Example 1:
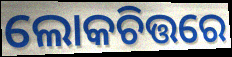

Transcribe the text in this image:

ଲୋକଚିତ୍ତରେ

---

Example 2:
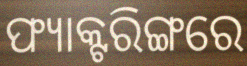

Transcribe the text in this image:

ଫ୍ୟାକ୍ଟରିଙ୍ଗରେ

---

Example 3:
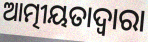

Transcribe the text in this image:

ଆତ୍ମୀୟତାଦ୍ଵାରା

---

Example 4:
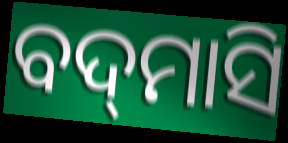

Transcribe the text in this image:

ବଦ୍‌ମାସି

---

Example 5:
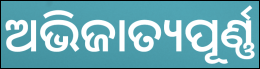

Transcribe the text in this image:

ଅଭିଜାତ୍ୟପୂର୍ଣ୍ଣ